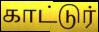
காட்டுர்